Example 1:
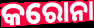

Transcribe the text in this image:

କରୋନା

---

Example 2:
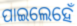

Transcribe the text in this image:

ପାଇଲେହେଁ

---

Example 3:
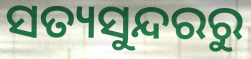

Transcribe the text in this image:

ସତ୍ୟସୁନ୍ଦରରୁ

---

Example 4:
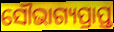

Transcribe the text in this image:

ସୌଭାଗ୍ୟପ୍ରାପ୍ତ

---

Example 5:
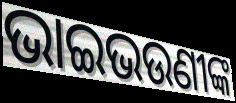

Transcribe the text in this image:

ଭାଇଭଉଣୀଙ୍କ